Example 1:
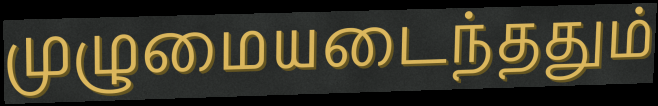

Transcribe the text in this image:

முழுமையடைந்ததும்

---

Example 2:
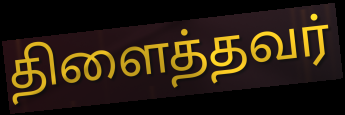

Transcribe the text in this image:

திளைத்தவர்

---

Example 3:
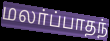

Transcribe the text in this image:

மலர்ப்பாதந்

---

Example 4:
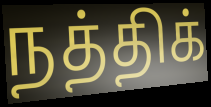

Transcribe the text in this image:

நத்திக்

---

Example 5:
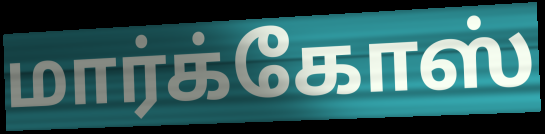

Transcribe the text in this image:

மார்க்கோஸ்